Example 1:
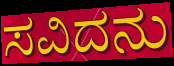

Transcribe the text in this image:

ಸವಿದನು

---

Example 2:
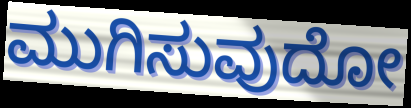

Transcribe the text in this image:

ಮುಗಿಸುವುದೋ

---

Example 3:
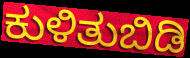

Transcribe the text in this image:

ಕುಳಿತುಬಿಡಿ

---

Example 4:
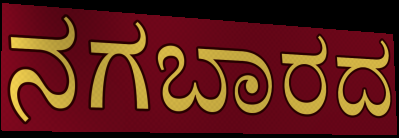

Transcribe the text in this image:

ನಗಬಾರದ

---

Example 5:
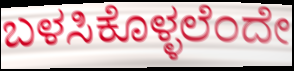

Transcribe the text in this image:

ಬಳಸಿಕೊಳ್ಳಲೆಂದೇ